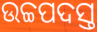
ଉଚ୍ଚପଦସ୍ତ